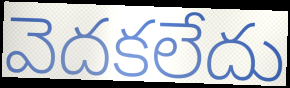
వెదకలేదు